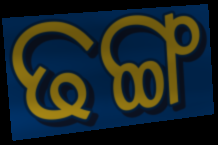
ଢଙ୍ଗ